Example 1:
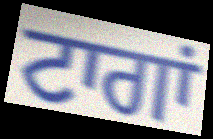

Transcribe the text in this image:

ਟਾਗਾਂ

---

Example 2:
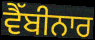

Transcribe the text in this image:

ਵੈੱਬੀਨਾਰ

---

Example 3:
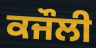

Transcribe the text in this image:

ਕਜੌਲੀ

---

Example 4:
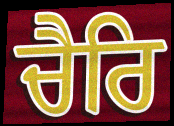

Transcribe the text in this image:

ਚੈਰਿ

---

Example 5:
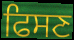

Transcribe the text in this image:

ਫਿਸਣ